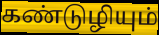
கண்டுழியும்